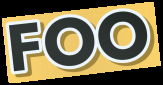
FOO